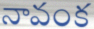
నావంక